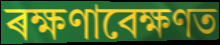
ৰক্ষণাবেক্ষণত